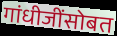
गांधीजींसोबत